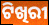
ଟିଖିରୀ